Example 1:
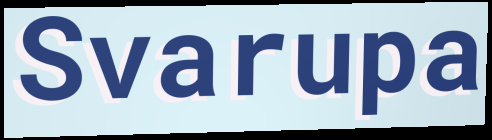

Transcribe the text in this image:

Svarupa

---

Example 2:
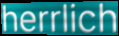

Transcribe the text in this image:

herrlich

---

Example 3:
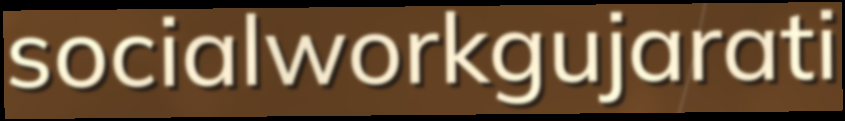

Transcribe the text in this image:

socialworkgujarati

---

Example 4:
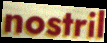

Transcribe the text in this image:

nostril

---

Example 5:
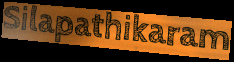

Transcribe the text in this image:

Silapathikaram